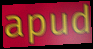
apud